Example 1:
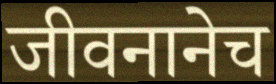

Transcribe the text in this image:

जीवनानेच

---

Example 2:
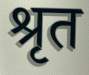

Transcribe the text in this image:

श्रृत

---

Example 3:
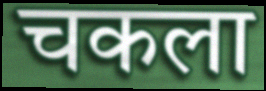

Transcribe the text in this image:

चकला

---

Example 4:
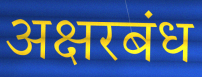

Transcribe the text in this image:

अक्षरबंध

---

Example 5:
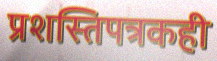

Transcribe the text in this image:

प्रशस्तिपत्रकही